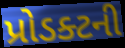
પ્રોડક્ટની